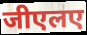
जीएलए